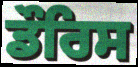
ਡੌਰਿਸ